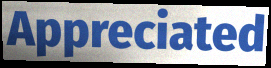
Appreciated